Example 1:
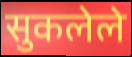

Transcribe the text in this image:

सुकलेले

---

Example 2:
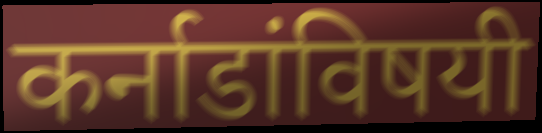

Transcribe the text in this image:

कर्नाडांविषयी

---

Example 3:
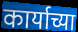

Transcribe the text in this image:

कार्याच्या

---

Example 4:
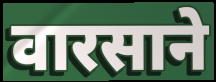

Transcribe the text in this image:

वारसाने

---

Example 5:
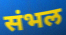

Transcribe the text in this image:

संभल